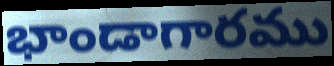
భాండాగారము